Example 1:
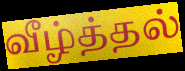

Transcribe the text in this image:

வீழ்த்தல்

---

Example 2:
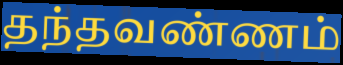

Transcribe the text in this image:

தந்தவண்ணம்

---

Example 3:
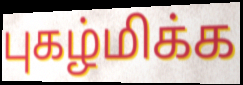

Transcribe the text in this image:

புகழ்மிக்க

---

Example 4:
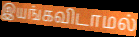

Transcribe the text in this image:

இயங்கவிடாமல்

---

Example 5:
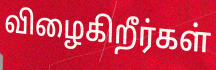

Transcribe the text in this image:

விழைகிறீர்கள்